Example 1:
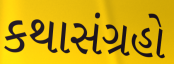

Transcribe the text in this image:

કથાસંગ્રહો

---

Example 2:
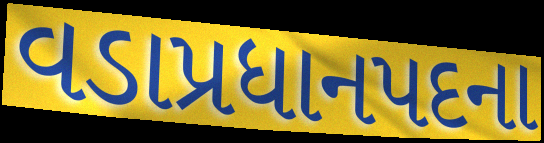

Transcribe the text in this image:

વડાપ્રધાનપદના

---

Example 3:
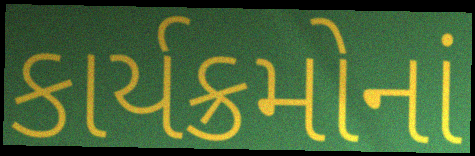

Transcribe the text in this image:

કાર્યક્રમોનાં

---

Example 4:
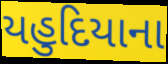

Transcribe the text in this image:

યહુદિયાના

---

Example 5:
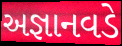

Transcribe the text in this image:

અજ્ઞાનવડે